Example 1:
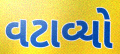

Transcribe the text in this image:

વટાવ્યો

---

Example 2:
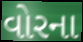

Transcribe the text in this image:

વોરના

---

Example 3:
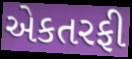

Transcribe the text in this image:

એકતરફી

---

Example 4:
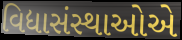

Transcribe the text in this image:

વિદ્યાસંસ્થાઓએ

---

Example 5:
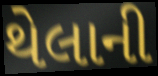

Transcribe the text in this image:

થેલાની